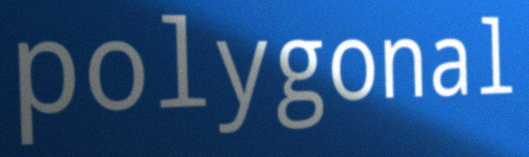
polygonal